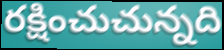
రక్షించుచున్నది